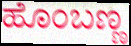
ಹೊಂಬಣ್ಣ